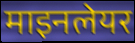
माइनलेयर